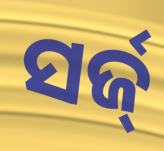
ସର୍ଜ୍